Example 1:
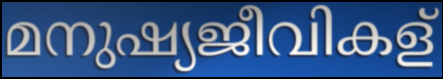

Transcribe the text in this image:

മനുഷ്യജീവികള്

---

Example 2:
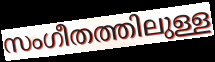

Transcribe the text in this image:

സംഗീതത്തിലുള്ള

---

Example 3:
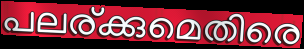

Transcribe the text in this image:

പലര്ക്കുമെതിരെ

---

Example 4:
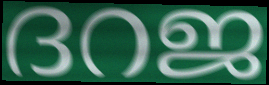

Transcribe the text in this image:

ദറജ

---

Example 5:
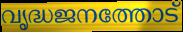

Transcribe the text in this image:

വൃദ്ധജനത്തോട്